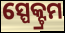
ସ୍ପେକ୍ଟ୍ରମ